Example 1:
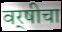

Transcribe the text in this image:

वर्षीचा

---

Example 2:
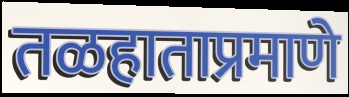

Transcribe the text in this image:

तळहाताप्रमाणे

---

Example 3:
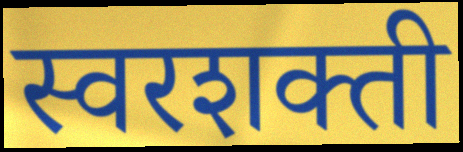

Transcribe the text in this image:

स्वरशक्ती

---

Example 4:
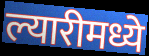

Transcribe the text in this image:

ल्यारीमध्ये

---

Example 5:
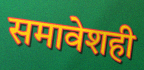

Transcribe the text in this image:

समावेशही